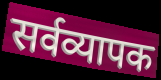
सर्वव्यापक